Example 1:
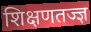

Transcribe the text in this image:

शिक्षणतज्ज्ञ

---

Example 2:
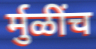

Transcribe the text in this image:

र्मुळींच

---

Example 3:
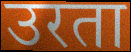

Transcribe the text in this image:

उरता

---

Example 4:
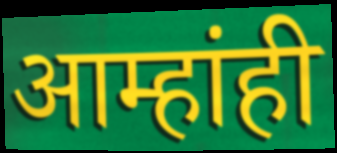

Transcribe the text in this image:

आम्हांही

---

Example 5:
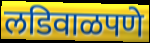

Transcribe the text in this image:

लडिवाळपणे